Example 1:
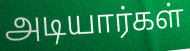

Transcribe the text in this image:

அடியார்கள்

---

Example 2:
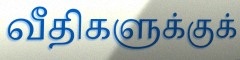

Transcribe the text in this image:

வீதிகளுக்குக்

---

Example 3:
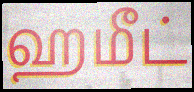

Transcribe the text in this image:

ஹமீட்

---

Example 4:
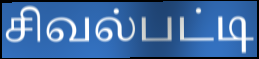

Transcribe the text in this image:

சிவல்பட்டி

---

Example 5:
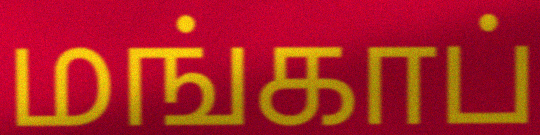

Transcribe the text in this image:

மங்காப்